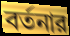
বর্তনার